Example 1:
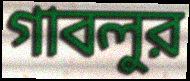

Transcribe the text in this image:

গাবলুর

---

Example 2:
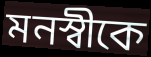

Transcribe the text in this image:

মনস্বীকে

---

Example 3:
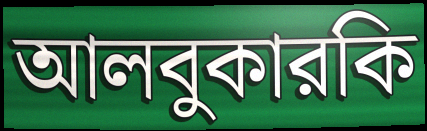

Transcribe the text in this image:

আলবুকারকি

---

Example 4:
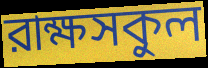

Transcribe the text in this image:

রাক্ষসকুল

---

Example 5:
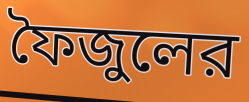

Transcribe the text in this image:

ফৈজুলের